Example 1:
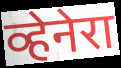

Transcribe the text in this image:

व्हेनेरा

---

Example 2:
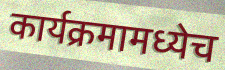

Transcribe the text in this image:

कार्यक्रमामध्येच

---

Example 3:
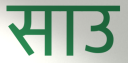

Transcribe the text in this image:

साउ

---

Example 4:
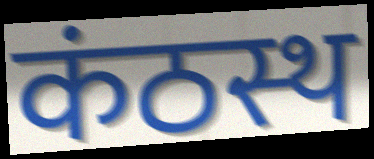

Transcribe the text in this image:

कंठस्थ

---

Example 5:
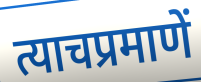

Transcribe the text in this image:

त्याचप्रमाणें